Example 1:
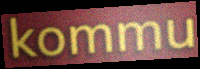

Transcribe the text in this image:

kommu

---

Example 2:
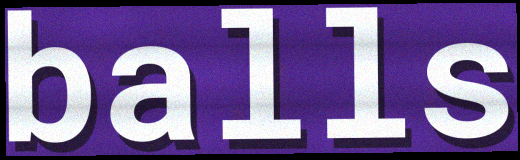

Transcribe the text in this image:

balls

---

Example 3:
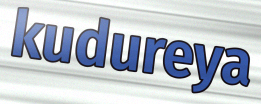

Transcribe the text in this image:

kudureya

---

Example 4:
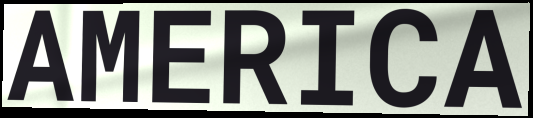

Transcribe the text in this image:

AMERICA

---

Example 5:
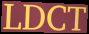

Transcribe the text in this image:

LDCT